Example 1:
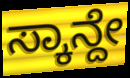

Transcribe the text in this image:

ಸ್ಕಾನ್ದೇ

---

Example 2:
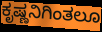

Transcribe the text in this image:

ಕೃಷ್ಣನಿಗಿಂತಲೂ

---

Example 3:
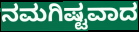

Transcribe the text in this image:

ನಮಗಿಷ್ಟವಾದ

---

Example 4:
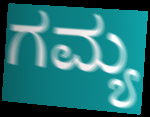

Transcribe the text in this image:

ಗಮ್ಯ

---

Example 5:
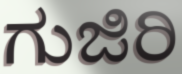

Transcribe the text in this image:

ಗುಜಿರಿ